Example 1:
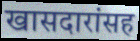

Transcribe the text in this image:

खासदारांसह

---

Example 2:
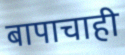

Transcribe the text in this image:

बापाचाही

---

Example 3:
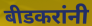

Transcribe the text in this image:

बीडकरांनी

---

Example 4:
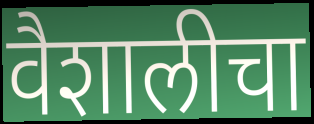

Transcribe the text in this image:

वैशालीचा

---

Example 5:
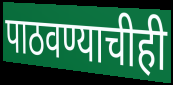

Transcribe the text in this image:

पाठवण्याचीही